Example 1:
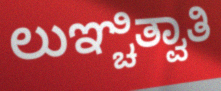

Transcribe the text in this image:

ಲುಞ್ಚಿತ್ವಾತಿ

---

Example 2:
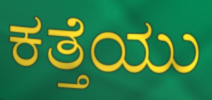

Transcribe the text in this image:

ಕತ್ತೆಯು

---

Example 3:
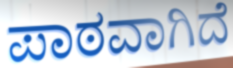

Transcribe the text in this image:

ಪಾಠವಾಗಿದೆ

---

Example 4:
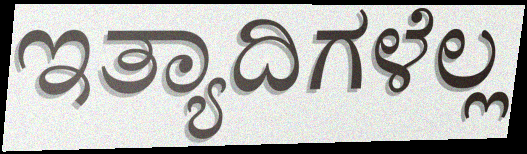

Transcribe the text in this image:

ಇತ್ಯಾದಿಗಳೆಲ್ಲ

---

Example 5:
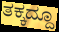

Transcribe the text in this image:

ತಕ್ಕದ್ದೂ